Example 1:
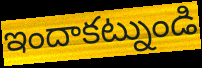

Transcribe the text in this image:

ఇందాకట్నుండి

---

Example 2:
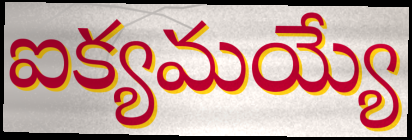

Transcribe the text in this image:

ఐక్యమయ్యే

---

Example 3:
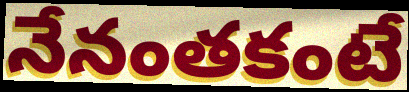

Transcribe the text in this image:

నేనంతకంటే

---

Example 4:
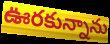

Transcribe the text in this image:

ఊరకున్నాను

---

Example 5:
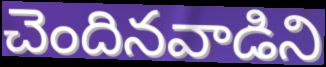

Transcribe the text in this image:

చెందినవాడిని